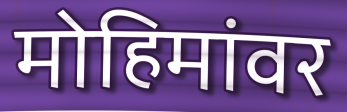
मोहिमांवर